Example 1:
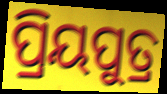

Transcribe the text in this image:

ପ୍ରିୟପୁତ୍ର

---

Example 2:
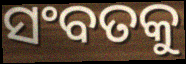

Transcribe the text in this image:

ସଂବତକୁ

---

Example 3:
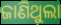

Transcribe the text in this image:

ଜାଣିଥୁଲା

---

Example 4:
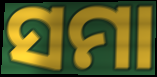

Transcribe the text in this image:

ସମା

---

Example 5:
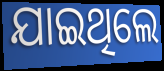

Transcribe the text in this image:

ଯାଇଥିଲେ